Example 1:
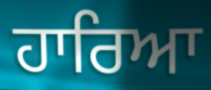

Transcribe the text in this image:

ਹਾਰਿਆ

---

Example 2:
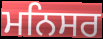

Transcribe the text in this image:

ਮਨਿਸਰ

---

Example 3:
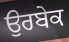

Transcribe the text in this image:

ਉਰਬੇਕ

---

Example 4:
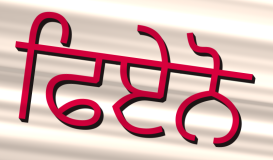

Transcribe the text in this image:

ਫਿਏਨੋ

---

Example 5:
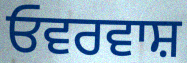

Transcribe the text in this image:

ਓਵਰਵਾਸ਼